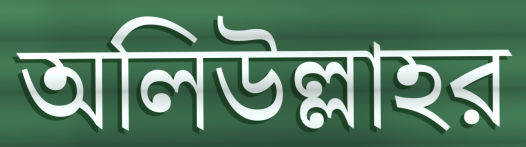
অলিউল্লাহর